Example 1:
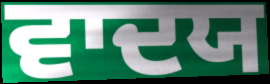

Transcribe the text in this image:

ਵਾਦਯ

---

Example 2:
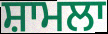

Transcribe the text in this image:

ਸ਼ਾਮਲਾ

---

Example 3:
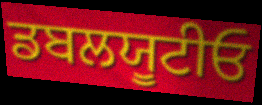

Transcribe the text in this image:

ਡਬਲਯੂਟੀਓ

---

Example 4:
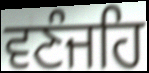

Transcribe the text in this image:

ਵਣੰਜਹਿ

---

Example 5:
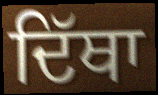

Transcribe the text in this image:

ਦਿੱਥਾ